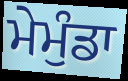
ਮੇਮੁੰਡਾ